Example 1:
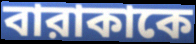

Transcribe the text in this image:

বারাকাকে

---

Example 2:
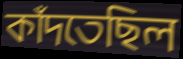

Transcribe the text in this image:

কাঁদতেছিল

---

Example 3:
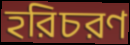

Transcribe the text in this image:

হরিচরণ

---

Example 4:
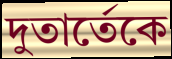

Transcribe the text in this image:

দুতার্তেকে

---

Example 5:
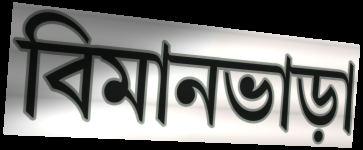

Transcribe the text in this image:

বিমানভাড়া